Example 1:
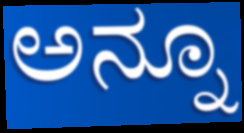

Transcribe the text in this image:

ಅನ್ನೂ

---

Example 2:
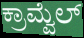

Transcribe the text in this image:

ಕ್ರಾಮ್ವೆಲ್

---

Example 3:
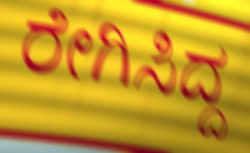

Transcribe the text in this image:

ರೇಗಿಸಿದ್ದ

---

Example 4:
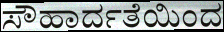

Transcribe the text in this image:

ಸೌಹಾರ್ದತೆಯಿಂದ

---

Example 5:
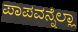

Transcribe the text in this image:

ಪಾಪವನ್ನೆಲ್ಲಾ